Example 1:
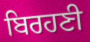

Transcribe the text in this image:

ਬਿਰਹਣੀ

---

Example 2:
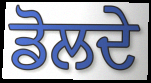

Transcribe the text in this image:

ਡੋਲਦੇ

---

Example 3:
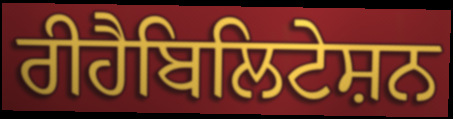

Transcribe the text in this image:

ਰੀਹੈਬਿਲਿਟੇਸ਼ਨ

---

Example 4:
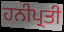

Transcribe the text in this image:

ਹਨੀਪ੍ਰਤੀ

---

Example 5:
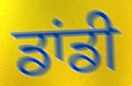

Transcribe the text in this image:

ਡਾਂਡੀ